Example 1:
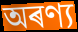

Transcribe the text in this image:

অৰণ্য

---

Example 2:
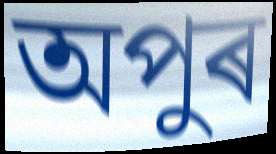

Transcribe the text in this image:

অপুৰ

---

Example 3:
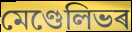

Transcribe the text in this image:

মেণ্ডেলিভৰ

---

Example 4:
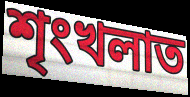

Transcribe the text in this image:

শৃংখলাত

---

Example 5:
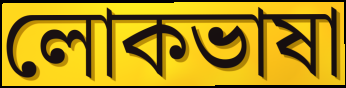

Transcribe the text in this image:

লোকভাষা